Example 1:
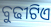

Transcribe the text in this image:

ବୁଢୀଟିଏ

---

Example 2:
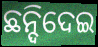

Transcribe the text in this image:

ଛନ୍ଦିଦେଇ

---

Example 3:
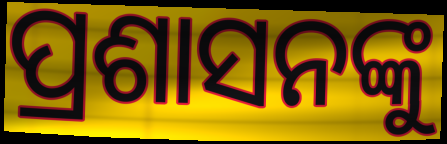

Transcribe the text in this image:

ପ୍ରଶାସନଙ୍କୁ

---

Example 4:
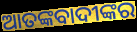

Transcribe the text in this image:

ଆତଙ୍କବାଦୀଙ୍କର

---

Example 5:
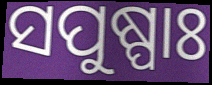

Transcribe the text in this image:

ସପୁଷ୍ପାଃ